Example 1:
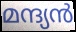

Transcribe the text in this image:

മന്ദ്യൻ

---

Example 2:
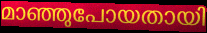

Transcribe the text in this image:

മാഞ്ഞുപോയതായി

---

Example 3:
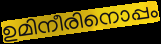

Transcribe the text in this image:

ഉമിനീരിനൊപ്പം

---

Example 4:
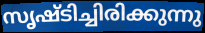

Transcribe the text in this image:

സൃഷ്ടിച്ചിരിക്കുന്നു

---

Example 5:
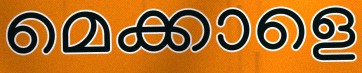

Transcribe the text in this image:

മെക്കാളെ